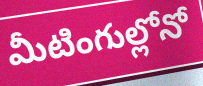
మీటింగుల్లోనో